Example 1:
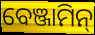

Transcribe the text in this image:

ବେଞ୍ଜାମିନ୍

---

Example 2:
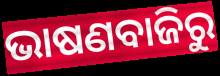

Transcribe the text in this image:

ଭାଷଣବାଜିରୁ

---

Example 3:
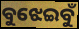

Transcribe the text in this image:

ବୁଝେଇବୁଁ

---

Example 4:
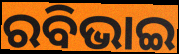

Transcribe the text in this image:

ରବିଭାଇ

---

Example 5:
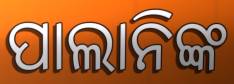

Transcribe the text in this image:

ପାଲାନିଙ୍କ